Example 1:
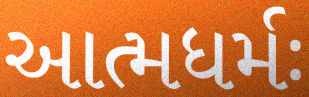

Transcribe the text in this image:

આત્મધર્મઃ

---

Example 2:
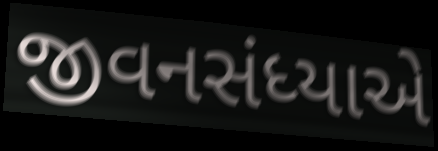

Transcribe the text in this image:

જીવનસંધ્યાએ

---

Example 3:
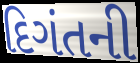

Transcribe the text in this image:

દિગંતની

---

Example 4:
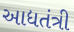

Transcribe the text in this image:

આદ્યતંત્રી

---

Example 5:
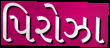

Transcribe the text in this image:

પિરોઝા